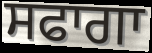
ਸਫਾਗਾ